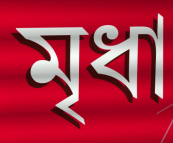
মৃধা